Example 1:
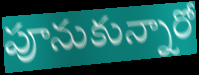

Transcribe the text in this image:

పూనుకున్నారో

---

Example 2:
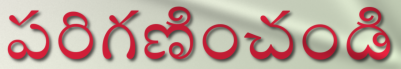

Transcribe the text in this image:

పరిగణించండి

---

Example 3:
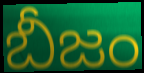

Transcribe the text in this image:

బీజం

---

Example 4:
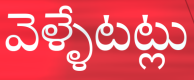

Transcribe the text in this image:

వెళ్ళేటట్లు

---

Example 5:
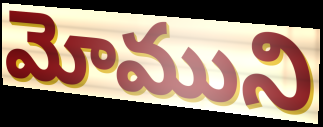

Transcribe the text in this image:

మోముని